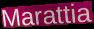
Marattia